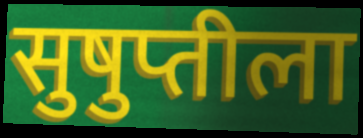
सुषुप्तीला